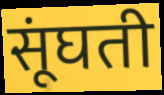
सूंघती